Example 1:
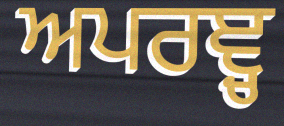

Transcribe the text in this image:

ਅਪਰਞ੍ਚ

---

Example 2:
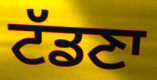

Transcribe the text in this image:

ਟੱਡਣਾ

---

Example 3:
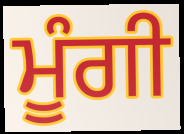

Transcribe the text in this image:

ਮੂੰਗੀ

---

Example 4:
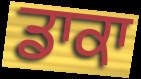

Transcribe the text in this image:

ਡਾਕਾ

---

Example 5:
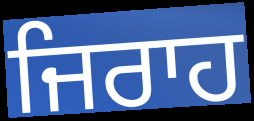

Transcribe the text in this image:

ਜਿਰਾਹ